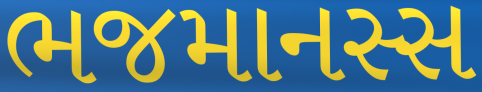
ભજમાનસ્સ